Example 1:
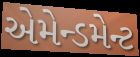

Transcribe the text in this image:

એમેન્ડમેન્ટ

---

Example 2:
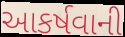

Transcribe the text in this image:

આકર્ષવાની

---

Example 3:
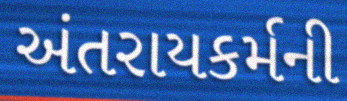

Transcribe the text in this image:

અંતરાયકર્મની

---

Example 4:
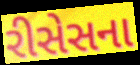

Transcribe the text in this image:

રીસેસના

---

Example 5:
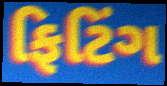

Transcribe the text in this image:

ફિટિંગ